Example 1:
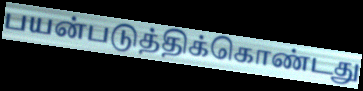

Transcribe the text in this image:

பயன்படுத்திக்கொண்டது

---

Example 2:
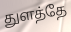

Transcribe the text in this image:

துளத்தே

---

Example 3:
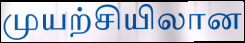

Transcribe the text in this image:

முயற்சியிலான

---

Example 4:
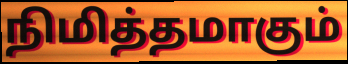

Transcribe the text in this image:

நிமித்தமாகும்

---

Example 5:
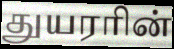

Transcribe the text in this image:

துயரரின்